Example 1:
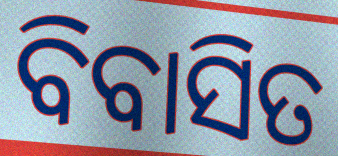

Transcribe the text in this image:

ବିବାସିତ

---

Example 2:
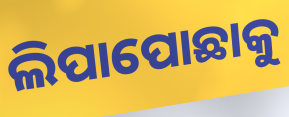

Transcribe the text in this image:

ଲିପାପୋଛାକୁ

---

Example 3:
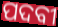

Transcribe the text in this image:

ପଦବୀ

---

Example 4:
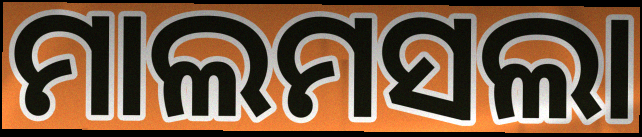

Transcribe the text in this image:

ମାଲମସଲା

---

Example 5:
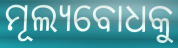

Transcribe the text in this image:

ମୂଲ୍ୟବୋଧକୁ